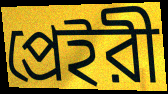
প্রেইরী